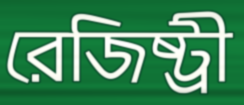
রেজিষ্ট্রী